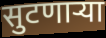
सुटणाऱ्या